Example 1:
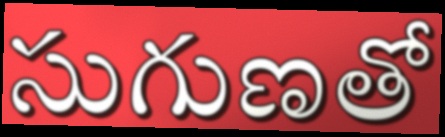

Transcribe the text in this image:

సుగుణతో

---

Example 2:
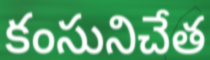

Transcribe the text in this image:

కంసునిచేత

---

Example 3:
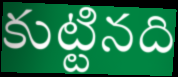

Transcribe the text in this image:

కుట్టినది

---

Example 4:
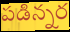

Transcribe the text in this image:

పడిన్నర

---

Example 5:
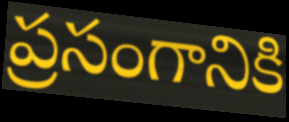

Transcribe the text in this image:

ప్రసంగానికి